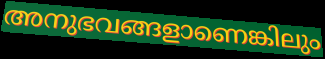
അനുഭവങ്ങളാണെങ്കിലും